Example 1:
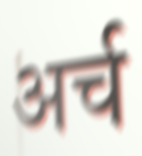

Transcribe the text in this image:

अर्च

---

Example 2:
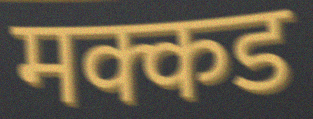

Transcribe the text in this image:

मक्कड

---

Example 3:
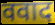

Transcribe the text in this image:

ववाद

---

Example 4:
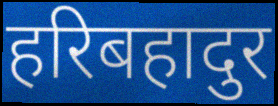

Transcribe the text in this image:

हरिबहादुर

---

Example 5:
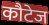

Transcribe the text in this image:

कौटेज